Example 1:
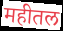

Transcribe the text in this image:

महीतल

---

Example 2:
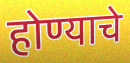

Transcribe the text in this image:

होण्याचे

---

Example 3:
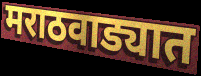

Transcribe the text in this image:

मराठवाड्यात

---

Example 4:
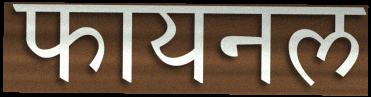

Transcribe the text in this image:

फायनल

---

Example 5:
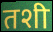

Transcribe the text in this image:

तशी